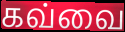
கவ்வை